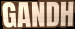
GANDH